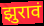
झुरावं